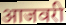
आजवरी